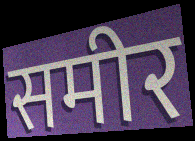
समीर